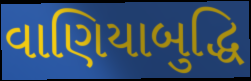
વાણિયાબુદ્ધિ